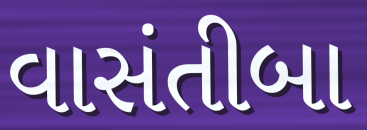
વાસંતીબા